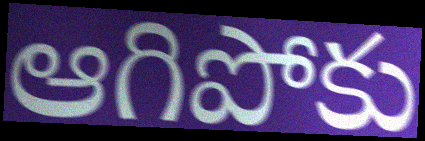
ఆగిపోకు